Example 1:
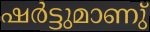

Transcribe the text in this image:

ഷർട്ടുമാണു്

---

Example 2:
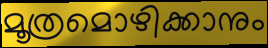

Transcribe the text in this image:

മൂത്രമൊഴിക്കാനും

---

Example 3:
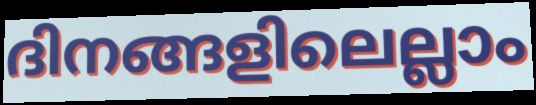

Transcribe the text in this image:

ദിനങ്ങളിലെല്ലാം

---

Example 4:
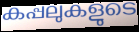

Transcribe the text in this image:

കപ്പലുകളുടെ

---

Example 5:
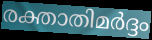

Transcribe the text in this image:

രക്താതിമർദ്ദം